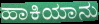
ಹಾಕಿಯಾನು